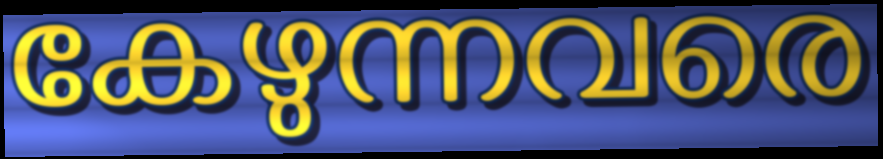
കേഴുന്നവരെ